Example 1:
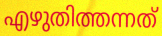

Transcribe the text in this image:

എഴുതിത്തന്നത്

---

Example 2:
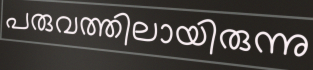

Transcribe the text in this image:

പരുവത്തിലായിരുന്നു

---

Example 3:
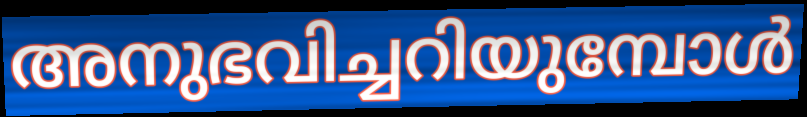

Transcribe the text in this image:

അനുഭവിച്ചറിയുമ്പോൾ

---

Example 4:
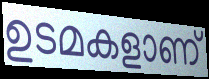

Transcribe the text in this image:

ഉടമകളാണ്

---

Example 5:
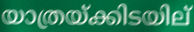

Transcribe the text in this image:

യാത്രയ്ക്കിടയില്